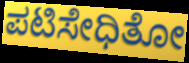
ಪಟಿಸೇಧಿತೋ